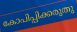
കോപിപ്പിക്കരുതു